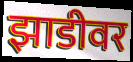
झाडीवर